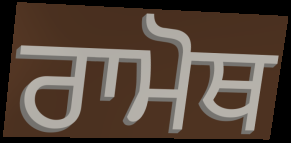
ਰਾਮੋਥ